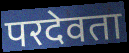
परदेवता